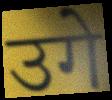
उगे